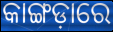
କାଙ୍ଗଡ଼ାରେ